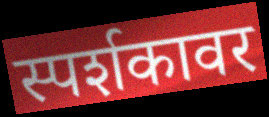
स्पर्शकावर